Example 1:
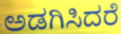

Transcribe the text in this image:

ಅಡಗಿಸಿದರೆ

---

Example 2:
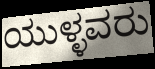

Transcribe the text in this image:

ಯುಳ್ಳವರು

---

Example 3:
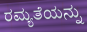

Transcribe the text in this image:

ರಮ್ಯತೆಯನ್ನು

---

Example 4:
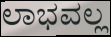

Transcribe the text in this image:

ಲಾಭವಲ್ಲ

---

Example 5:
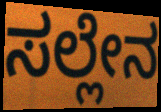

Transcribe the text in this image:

ಸಲ್ಲೇನ